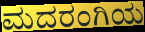
ಮದರಂಗಿಯ